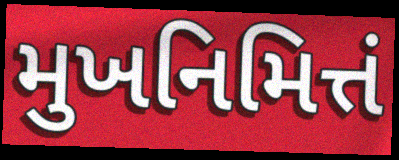
મુખનિમિત્તં